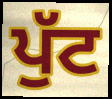
ਪੁੱਟ